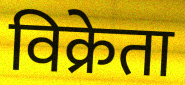
विक्रेता